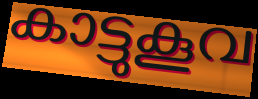
കാട്ടുകൂവ